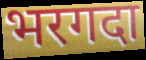
भरगदा